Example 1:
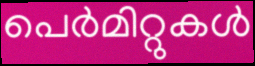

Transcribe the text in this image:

പെർമിറ്റുകൾ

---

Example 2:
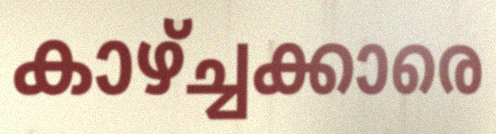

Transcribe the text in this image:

കാഴ്ച്ചക്കാരെ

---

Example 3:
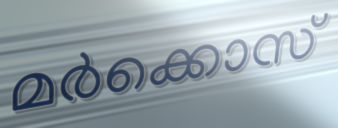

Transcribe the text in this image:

മർക്കൊസ്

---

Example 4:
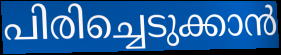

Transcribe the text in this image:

പിരിച്ചെടുക്കാൻ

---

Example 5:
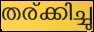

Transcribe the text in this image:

തര്ക്കിച്ചു